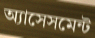
অ্যাসেসমেন্ট